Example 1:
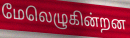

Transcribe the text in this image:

மேலெழுகின்றன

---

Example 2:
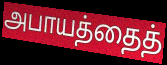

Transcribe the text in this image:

அபாயத்தைத்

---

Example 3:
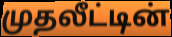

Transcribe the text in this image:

முதலீட்டின்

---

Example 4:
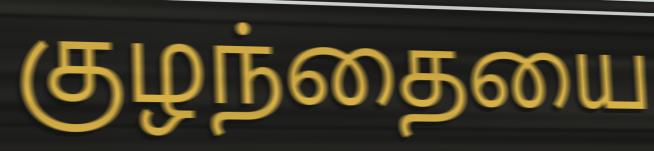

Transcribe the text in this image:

குழந்தையை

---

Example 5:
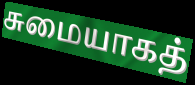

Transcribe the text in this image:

சுமையாகத்